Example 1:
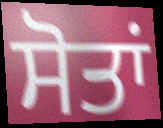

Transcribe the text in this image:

ਸੋਤਾਂ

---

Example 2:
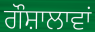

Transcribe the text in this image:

ਗੌਸ਼ਾਲਾਵਾਂ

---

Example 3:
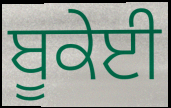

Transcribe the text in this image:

ਬੂਕੇਈ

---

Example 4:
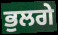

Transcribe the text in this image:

ਭੁਲਗੇ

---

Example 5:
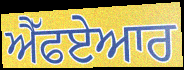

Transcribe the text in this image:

ਐੱਫਏਆਰ